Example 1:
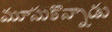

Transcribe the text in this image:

మూసుకొన్నాడు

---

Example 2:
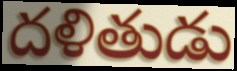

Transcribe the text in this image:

దళితుడు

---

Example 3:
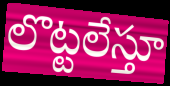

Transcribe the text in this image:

లొట్టలేస్తూ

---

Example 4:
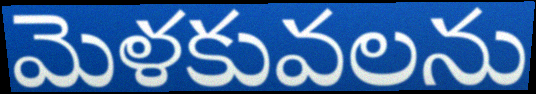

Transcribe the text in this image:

మెళకువలను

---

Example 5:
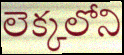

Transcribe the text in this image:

లెక్కలోని